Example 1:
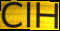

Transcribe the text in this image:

CIH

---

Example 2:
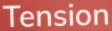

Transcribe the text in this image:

Tension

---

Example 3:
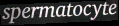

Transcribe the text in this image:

spermatocyte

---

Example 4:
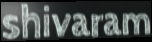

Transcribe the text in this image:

shivaram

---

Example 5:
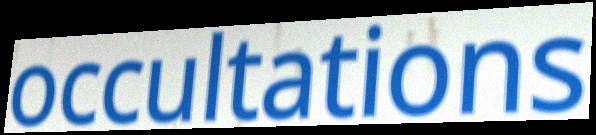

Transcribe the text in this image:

occultations